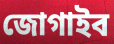
জোগাইব